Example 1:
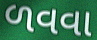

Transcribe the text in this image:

ળવવા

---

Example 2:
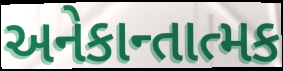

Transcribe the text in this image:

અનેકાન્તાત્મક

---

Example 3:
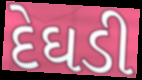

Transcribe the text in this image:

દેઘડી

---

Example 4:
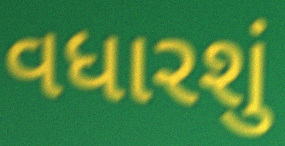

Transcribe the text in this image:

વધારશું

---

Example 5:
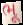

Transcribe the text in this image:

ભૂ